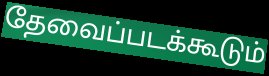
தேவைப்படக்கூடும்